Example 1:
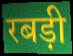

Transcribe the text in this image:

रबड़ी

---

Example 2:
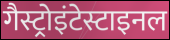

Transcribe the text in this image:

गैस्ट्रोइंटेस्टाइनल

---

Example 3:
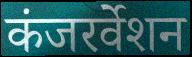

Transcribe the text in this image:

कंजरर्वेशन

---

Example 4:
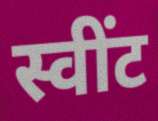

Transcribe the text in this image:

स्वींट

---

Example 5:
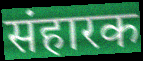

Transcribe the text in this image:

संहारक